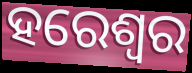
ହରେଶ୍ୱର